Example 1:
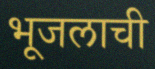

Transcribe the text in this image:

भूजलाची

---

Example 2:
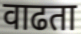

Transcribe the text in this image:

वाढता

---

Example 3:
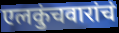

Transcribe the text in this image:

एलकुंचवारांचं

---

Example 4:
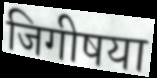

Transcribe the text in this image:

जिगीषया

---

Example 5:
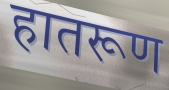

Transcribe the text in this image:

हातरूण